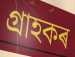
গ্ৰাহকৰ